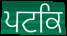
ਪਟਕਿ